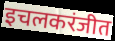
इचलकरंजीत